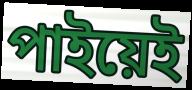
পাইয়েই